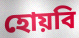
হোয়বি